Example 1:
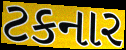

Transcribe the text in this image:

ટકનાર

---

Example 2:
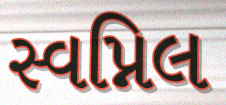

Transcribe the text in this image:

સ્વપ્નિલ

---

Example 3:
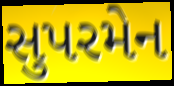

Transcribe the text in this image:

સુપરમેન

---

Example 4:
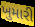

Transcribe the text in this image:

ખુમારી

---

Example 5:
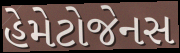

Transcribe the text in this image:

હેમેટોજેનસ